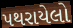
પથરાયેલો